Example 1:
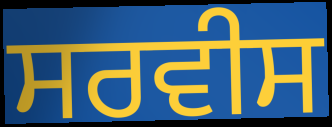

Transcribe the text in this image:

ਸਰਵੀਸ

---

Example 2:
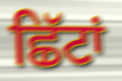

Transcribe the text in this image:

ਛਿੱਟਾਂ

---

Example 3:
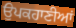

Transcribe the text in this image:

ਉਪਕਹਾਣੀਆਂ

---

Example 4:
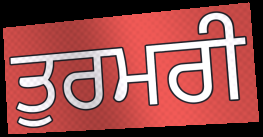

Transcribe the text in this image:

ਤੁਰਮਰੀ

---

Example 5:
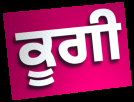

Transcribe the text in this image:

ਕੂਗੀ